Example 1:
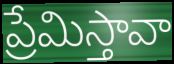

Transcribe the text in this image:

ప్రేమిస్తావా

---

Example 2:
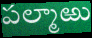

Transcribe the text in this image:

పల్మాఱు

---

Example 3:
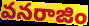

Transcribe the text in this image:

వనరాజిం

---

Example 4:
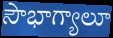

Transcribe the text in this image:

సౌభాగ్యాలూ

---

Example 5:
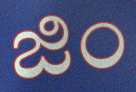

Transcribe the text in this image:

జిం